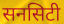
सनसिटी